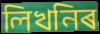
লিখনিৰ